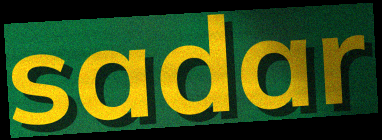
sadar